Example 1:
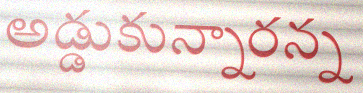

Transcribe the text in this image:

అడ్డుకున్నారన్న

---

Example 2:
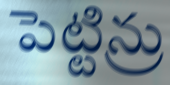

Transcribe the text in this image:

పెట్టిన్రు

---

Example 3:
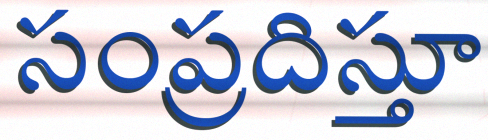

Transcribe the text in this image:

సంప్రదిస్తూ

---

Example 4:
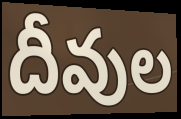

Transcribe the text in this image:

దీవుల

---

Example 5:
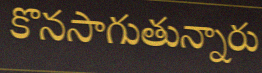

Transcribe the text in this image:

కొనసాగుతున్నారు